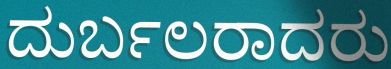
ದುರ್ಬಲರಾದರು